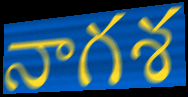
నాగశ